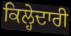
ਕਿਲ੍ਹੇਦਾਰੀ